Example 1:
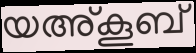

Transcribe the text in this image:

യഅ്കൂബ്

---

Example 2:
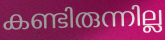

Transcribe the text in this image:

കണ്ടിരുന്നില്ല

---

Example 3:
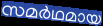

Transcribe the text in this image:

സമർഥമായ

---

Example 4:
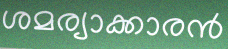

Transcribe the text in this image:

ശമര്യാക്കാരൻ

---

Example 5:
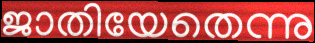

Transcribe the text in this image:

ജാതിയേതെന്നു